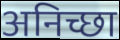
अनिच्छा